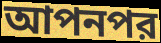
আপনপর